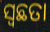
ସ୍ବଛତା